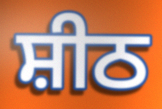
ਸ਼ੀਠ